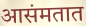
आसंमतात